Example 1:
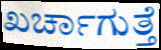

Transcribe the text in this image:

ಖರ್ಚಾಗುತ್ತೆ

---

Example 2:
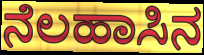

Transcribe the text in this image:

ನೆಲಹಾಸಿನ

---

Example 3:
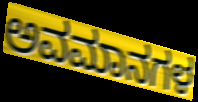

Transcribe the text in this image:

ಅವಮಾನಗಳ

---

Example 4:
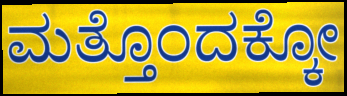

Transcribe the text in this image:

ಮತ್ತೊಂದಕ್ಕೋ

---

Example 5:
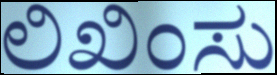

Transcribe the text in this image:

ಲಿಖಿಂಸು